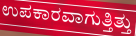
ಉಪಕಾರವಾಗುತ್ತಿತ್ತು